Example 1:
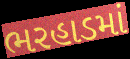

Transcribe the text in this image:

ભરહાડમાં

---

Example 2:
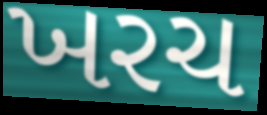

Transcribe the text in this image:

ખરચ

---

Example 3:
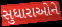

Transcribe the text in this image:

સુધારાઓને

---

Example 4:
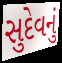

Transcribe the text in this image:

સુદેવનું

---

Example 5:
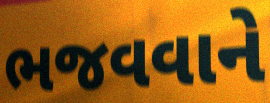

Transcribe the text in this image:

ભજવવાને